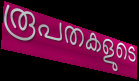
രൂപതകളുടെ